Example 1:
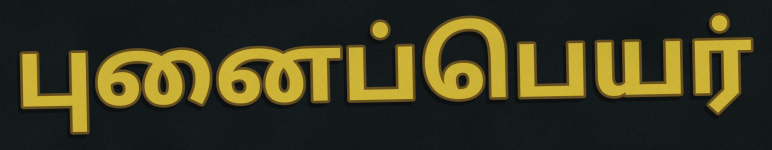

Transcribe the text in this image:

புனைப்பெயர்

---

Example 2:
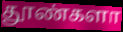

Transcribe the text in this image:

தூண்களா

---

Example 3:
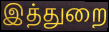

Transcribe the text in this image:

இத்துறை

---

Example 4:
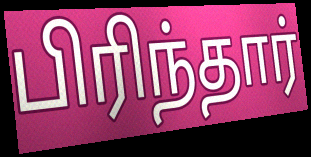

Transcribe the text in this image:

பிரிந்தார்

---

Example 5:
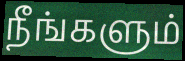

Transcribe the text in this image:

நீங்களும்